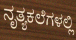
ನೃತ್ಯಕಲೆಗಳಲ್ಲಿ